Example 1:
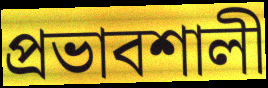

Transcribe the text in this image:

প্রভাবশালী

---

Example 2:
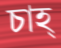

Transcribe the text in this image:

চাহ্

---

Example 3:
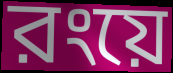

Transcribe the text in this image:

রংয়ে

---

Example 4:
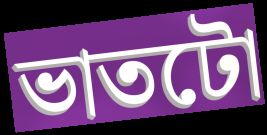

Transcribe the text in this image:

ভাতটো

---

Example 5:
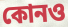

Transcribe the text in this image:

কোনও